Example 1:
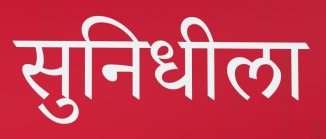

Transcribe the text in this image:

सुनिधीला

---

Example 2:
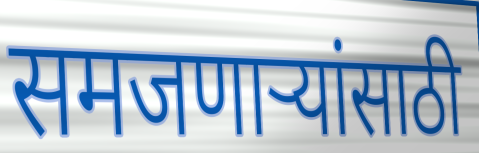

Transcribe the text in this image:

समजणाऱ्यांसाठी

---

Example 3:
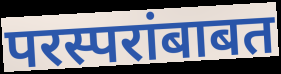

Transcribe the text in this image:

परस्परांबाबत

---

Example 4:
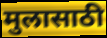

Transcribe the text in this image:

मुलासाठी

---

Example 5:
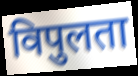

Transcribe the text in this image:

विपुलता